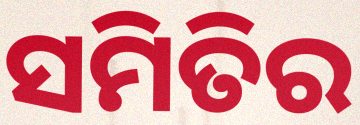
ସମିତିର